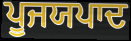
ਪੂਜਯਪਾਦ